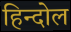
हिन्दोल